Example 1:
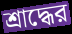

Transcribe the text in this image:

শ্রাদ্ধের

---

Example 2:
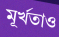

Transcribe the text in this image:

মূর্খতাও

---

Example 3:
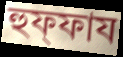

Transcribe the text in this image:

হুফ্ফায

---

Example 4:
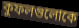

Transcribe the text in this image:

কুফলগুলোকে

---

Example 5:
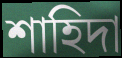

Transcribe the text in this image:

শাহিদা